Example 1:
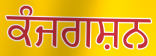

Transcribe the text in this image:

ਕੰਜਗਸ਼ਨ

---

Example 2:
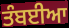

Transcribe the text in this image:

ਤੰਬਈਆ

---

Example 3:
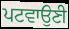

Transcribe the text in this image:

ਪਟਵਾਉਣੀ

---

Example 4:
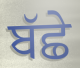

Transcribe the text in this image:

ਬੱਛੇ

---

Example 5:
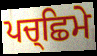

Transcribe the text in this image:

ਪਚ੍ਛਿਮੇ